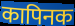
कापिनक